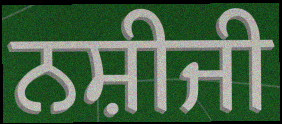
ਨਸ਼ੀਜੀ